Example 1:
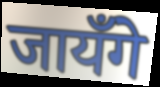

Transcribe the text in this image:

जायँगे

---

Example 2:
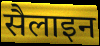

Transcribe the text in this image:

सैलाइन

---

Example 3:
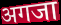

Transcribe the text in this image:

अगजा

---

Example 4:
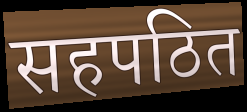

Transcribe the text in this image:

सहपठित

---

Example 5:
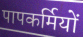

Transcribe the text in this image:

पापकर्मियों